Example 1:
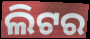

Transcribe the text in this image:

ଲିଟର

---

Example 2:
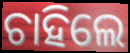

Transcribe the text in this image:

ଚାହିଲେ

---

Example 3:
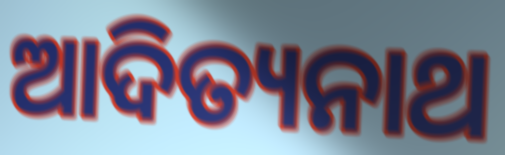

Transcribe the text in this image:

ଆଦିତ୍ୟନାଥ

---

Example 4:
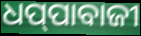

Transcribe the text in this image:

ଧପ୍‌ପାବାଜୀ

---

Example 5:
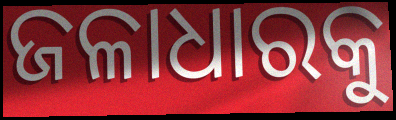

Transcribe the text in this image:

ଜଳାଧାରକୁ